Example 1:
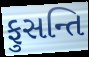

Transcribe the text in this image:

ફુસન્તિ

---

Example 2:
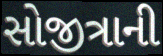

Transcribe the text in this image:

સોજીત્રાની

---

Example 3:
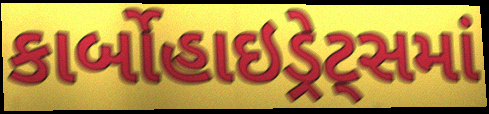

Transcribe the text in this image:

કાર્બોહાઇડ્રેટ્સમાં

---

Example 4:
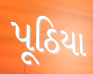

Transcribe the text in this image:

પૂઠિયા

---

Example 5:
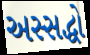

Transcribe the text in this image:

અસ્સદ્ધો